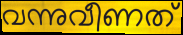
വന്നുവീണത്